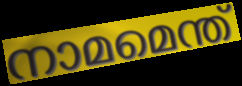
നാമമെന്ത്